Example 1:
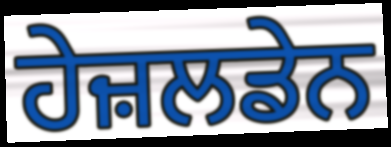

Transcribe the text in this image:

ਹੇਜ਼ਲਡੇਨ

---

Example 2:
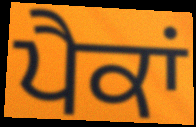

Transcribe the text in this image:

ਪੈਕਾਂ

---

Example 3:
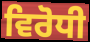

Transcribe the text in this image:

ਵਿਰੋਧੀ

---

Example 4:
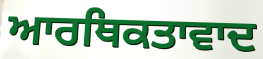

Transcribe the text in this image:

ਆਰਥਿਕਤਾਵਾਦ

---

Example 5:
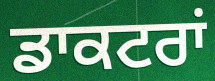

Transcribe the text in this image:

ਡਾਕਟਰਾਂ